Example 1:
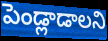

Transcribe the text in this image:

పెండ్లాడాలని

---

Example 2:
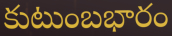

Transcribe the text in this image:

కుటుంబభారం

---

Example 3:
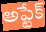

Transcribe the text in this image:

అప్టేక్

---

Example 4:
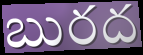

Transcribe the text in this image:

బురద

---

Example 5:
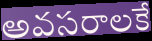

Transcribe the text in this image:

అవసరాలకే